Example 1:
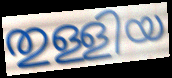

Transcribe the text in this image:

തുള്ളിയ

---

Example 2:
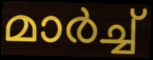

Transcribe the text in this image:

മാർച്ച്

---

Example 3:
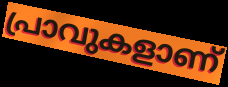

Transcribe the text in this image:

പ്രാവുകളാണ്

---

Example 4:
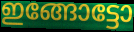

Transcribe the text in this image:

ഇങ്ങോട്ടോ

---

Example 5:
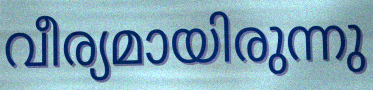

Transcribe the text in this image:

വീര്യമായിരുന്നു